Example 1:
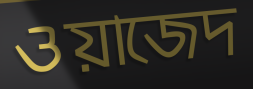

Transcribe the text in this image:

ওয়াজেদ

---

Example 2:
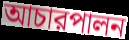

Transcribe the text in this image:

আচারপালন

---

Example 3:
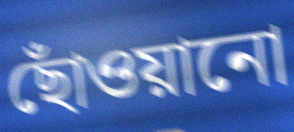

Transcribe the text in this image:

ছোঁওয়ানো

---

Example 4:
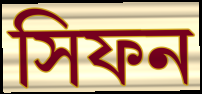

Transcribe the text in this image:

সিফন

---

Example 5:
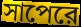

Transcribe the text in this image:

সাপেরে